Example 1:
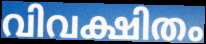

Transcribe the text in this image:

വിവക്ഷിതം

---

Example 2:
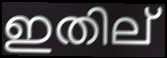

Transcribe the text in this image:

ഇതില്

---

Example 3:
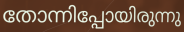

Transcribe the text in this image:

തോന്നിപ്പോയിരുന്നു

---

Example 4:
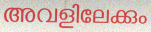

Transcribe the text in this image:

അവളിലേക്കും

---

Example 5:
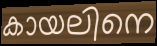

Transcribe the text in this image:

കായലിനെ